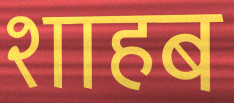
शाहब